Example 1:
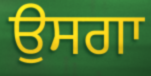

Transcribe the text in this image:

ਉਸਗਾ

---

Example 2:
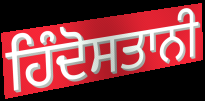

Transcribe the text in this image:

ਹਿੰਦੋਸਤਾਨੀ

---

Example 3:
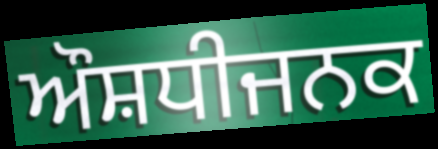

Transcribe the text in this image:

ਔਸ਼ਧੀਜਨਕ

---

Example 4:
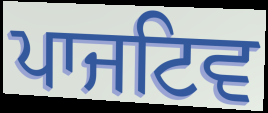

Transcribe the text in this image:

ਪਾਜਟਿਵ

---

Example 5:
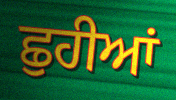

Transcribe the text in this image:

ਛੁਹੀਆਂ